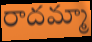
రాదమ్మా